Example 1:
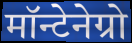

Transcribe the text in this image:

मॉन्टेनेग्रो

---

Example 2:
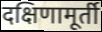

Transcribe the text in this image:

दक्षिणामूर्ती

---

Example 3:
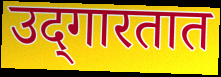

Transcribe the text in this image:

उद्‌गारतात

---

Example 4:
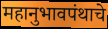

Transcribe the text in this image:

महानुभावपंथाचे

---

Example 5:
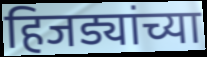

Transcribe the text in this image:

हिजड्यांच्या